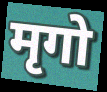
मृगो